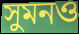
সুমনও